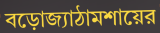
বড়োজ্যাঠামশায়ের